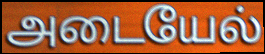
அடையேல்